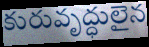
కురువృద్ధులైన